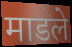
माडले